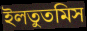
ইলতুতমিস